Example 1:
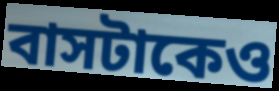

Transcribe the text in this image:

বাসটাকেও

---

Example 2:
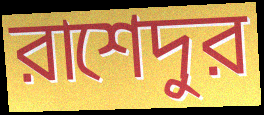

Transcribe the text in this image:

রাশেদুর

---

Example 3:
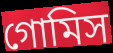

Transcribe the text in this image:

গোমিস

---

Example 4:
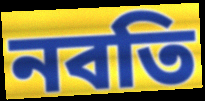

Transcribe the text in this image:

নবতি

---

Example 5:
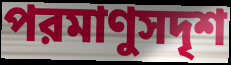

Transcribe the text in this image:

পরমাণুসদৃশ